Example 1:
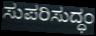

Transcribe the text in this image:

ಸುಪರಿಸುದ್ಧಂ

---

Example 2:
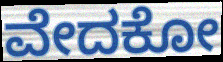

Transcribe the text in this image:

ವೇದಕೋ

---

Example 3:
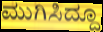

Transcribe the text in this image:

ಮುಗಿಸಿದ್ದೂ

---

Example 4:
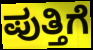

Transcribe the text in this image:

ಪುತ್ತಿಗೆ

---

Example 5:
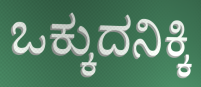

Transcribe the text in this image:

ಒಕ್ಕುದನಿಕ್ಕಿ